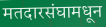
मतदारसंघामधून